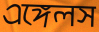
এঙ্গেলস